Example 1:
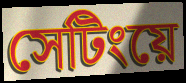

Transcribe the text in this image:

সেটিংয়ে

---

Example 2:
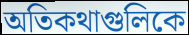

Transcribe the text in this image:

অতিকথাগুলিকে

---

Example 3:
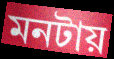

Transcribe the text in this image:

মনটায়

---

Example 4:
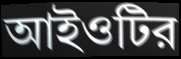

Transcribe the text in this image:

আইওটির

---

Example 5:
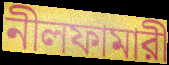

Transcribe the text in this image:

নীলফামারী